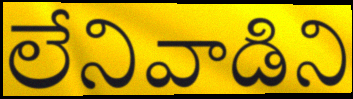
లేనివాడిని